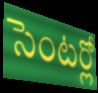
సెంటర్లో